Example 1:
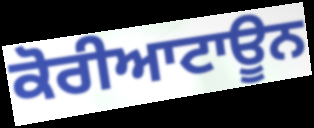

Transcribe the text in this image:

ਕੋਰੀਆਟਾਊਨ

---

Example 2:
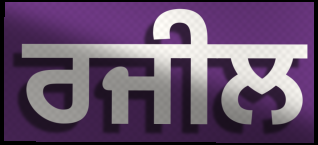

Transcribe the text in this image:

ਰਜੀਲ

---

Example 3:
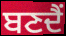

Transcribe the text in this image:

ਬਣਦੈਂ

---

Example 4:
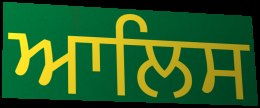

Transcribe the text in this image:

ਆਲਿਸ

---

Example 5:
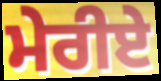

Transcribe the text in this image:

ਮੇਰੀਏ